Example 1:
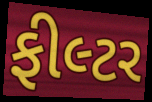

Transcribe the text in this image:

ફીલ્ટર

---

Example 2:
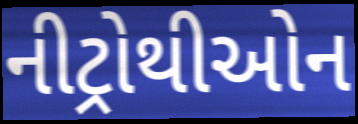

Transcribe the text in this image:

નીટ્રોથીઓન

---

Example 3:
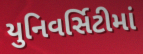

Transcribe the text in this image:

યુનિવર્સિટીમાં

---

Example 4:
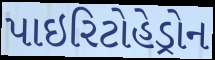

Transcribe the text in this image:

પાઇરિટોહેડ્રોન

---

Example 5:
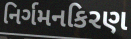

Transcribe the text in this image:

નિર્ગમનકિરણ